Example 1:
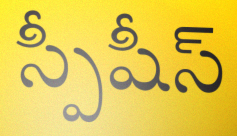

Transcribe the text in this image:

స్పీషీస్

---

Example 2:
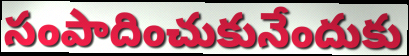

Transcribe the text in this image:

సంపాదించుకునేందుకు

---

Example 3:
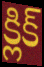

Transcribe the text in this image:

క్లిక్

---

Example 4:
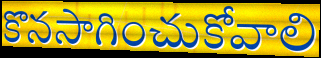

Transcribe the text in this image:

కొనసాగించుకోవాలి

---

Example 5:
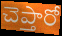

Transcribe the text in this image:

చెప్తారో